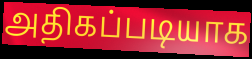
அதிகப்படியாக